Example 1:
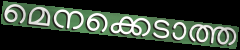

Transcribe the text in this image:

മെനക്കെടാത്ത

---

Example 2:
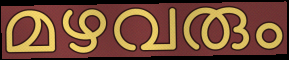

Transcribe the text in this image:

മഴവരും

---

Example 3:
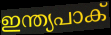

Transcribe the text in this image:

ഇന്ത്യപാക്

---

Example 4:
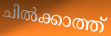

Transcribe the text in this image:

ചിൽക്കാത്ത്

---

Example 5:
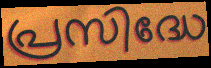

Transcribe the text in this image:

പ്രസിദ്ധേ